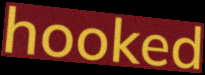
hooked